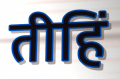
तीहिं